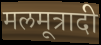
मलमूत्रादी